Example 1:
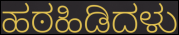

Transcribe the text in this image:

ಹಠಹಿಡಿದಳು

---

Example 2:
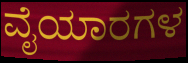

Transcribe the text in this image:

ವೈಯಾರಗಳ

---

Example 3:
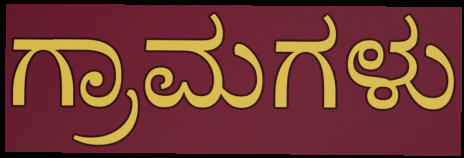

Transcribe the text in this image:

ಗ್ರಾಮಗಳು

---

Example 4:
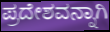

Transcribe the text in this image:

ಪ್ರದೇಶವನ್ನಾಗಿ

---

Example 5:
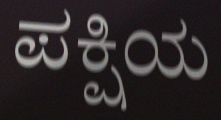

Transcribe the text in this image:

ಪಕ್ಷಿಯ